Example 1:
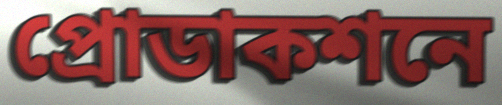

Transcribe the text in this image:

প্রোডাকশনে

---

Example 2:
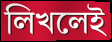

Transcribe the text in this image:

লিখলেই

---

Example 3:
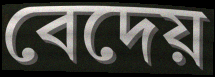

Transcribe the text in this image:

বেদেয়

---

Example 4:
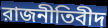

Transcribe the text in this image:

রাজনীতিবীদ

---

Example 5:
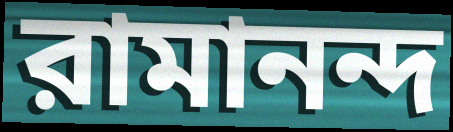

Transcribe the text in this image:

রামানন্দ